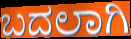
ಬದಲಾಗಿ